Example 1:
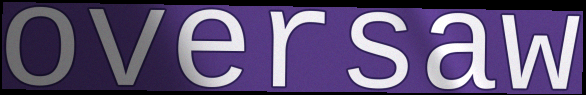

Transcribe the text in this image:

oversaw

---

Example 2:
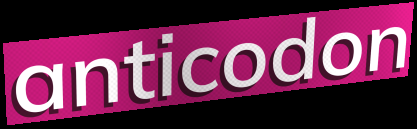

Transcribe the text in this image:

anticodon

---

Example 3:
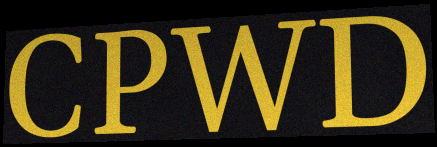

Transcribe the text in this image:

CPWD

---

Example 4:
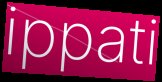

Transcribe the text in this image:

ippati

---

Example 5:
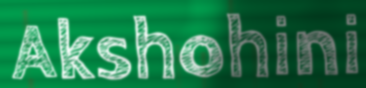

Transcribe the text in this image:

Akshohini